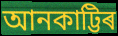
আনকাট্টিৰ